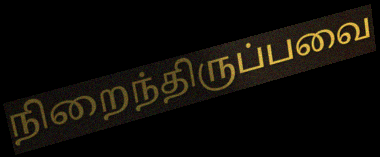
நிறைந்திருப்பவை